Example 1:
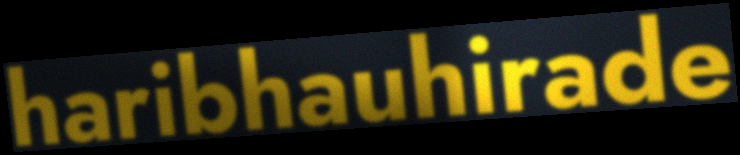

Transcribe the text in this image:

haribhauhirade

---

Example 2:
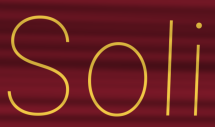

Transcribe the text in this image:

Soli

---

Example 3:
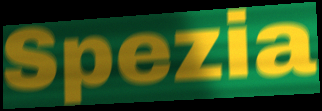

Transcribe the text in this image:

Spezia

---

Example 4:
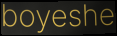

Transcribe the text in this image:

boyeshe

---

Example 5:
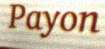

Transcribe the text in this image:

Payon